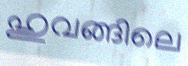
ഹുവങ്ങിലെ